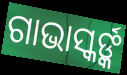
ଗାଭାସ୍କର୍ଙ୍କ